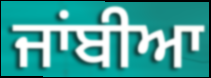
ਜਾਂਬੀਆ